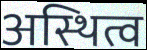
अस्थित्व